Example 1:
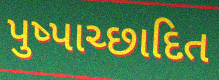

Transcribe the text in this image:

પુષ્પાચ્છાદિત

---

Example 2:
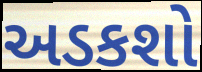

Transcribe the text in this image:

અડકશો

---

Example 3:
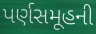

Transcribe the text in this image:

પર્ણસમૂહની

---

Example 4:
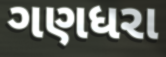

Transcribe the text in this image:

ગણધરા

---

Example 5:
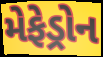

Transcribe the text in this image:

મેફેડ્રોન